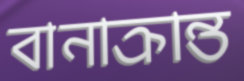
বানাক্ৰান্ত